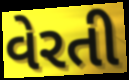
વેરતી